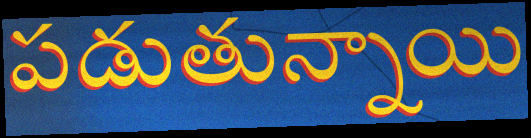
పడుతున్నాయి